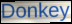
Donkey